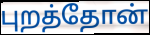
புறத்தோன்